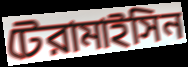
টেরামাইসিন